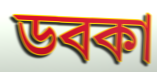
ডবকা